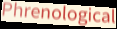
Phrenological